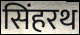
सिंहरथ